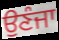
ਉਣੰਜਾ